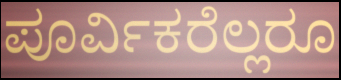
ಪೂರ್ವಿಕರೆಲ್ಲರೂ